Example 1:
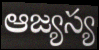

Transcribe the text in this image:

ఆజ్యస్య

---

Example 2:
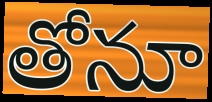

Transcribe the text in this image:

తోనూ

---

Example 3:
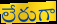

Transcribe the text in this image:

లేరుగా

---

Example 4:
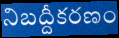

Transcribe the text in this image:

నిబద్దీకరణం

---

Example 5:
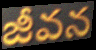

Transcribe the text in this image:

జీవన